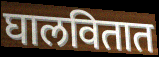
घालवितात